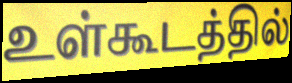
உள்கூடத்தில்